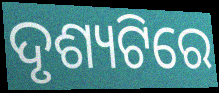
ଦୃଶ୍ୟଟିରେ